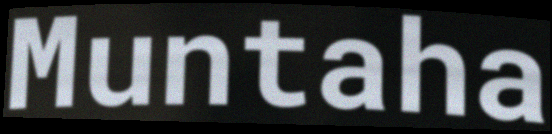
Muntaha